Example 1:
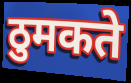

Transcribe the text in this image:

ठुमकते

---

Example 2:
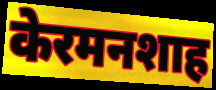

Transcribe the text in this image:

केरमनशाह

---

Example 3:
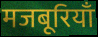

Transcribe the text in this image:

मजबूरियाँ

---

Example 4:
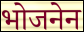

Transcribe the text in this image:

भोजनेन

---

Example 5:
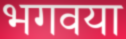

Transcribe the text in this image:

भगवया